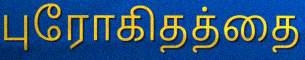
புரோகிதத்தை